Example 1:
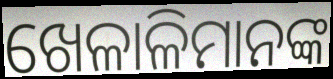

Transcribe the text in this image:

ଖେଳାଳିମାନଙ୍କ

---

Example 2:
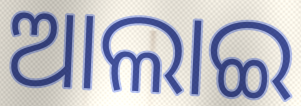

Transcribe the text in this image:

ଆଲାଇ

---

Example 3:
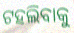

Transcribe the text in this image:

ଟହଲିବାକୁ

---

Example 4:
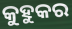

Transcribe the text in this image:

କୁହୁକର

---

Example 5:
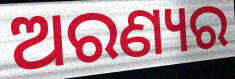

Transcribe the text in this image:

ଅରଣ୍ୟର